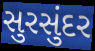
સુરસુંદર